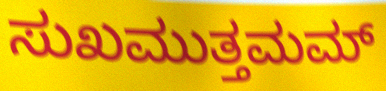
ಸುಖಮುತ್ತಮಮ್